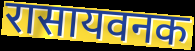
रासायवनक